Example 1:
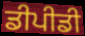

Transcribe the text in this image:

ਡੀਪੀਡੀ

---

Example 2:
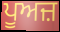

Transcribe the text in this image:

ਪੂਅਜ਼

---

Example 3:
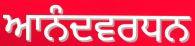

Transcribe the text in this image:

ਆਨੰਦਵਰਧਨ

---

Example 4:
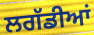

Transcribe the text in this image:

ਲਗੱਡੀਆਂ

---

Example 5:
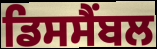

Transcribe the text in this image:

ਡਿਸਸੈਂਬਲ